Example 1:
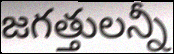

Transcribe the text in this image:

జగత్తులన్నీ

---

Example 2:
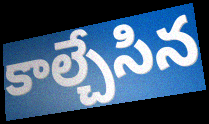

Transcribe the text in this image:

కాల్చేసిన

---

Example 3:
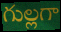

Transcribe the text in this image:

గుల్లగా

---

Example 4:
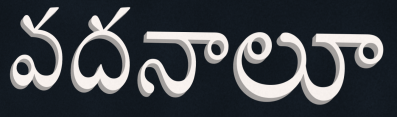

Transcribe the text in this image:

వదనాలూ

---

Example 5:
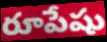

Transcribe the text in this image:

రూపేషు